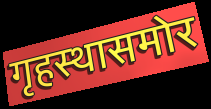
गृहस्थासमोर